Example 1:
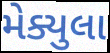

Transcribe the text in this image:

મેક્યુલા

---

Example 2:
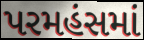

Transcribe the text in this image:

પરમહંસમાં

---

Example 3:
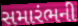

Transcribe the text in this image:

સમારંભની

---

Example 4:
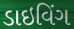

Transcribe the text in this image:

ડાઇવિંગ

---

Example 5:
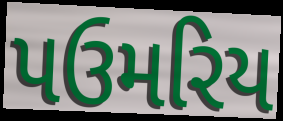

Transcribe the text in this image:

પઉમરિય